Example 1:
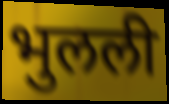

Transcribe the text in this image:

भुलली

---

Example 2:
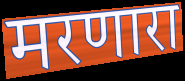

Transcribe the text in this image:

मरणारा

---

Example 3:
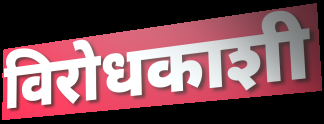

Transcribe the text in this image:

विरोधकाशी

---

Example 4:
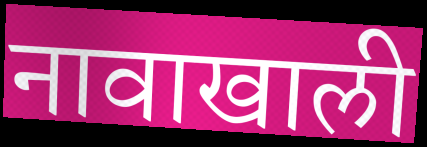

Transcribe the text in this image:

नावाखाली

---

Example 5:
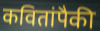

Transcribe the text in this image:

कवितांपैकी